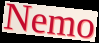
Nemo